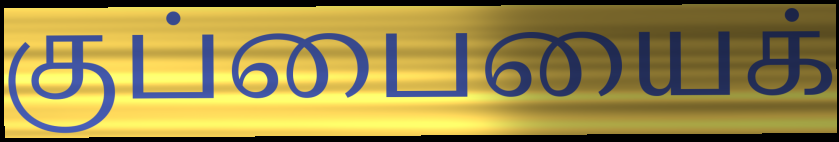
குப்பையைக்